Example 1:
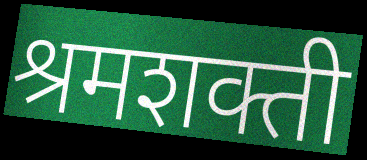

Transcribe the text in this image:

श्रमशक्ती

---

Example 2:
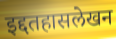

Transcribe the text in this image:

इद्दतहासलेखन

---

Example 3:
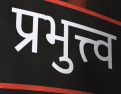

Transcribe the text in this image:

प्रभुत्त्व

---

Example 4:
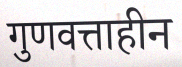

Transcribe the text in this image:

गुणवत्ताहीन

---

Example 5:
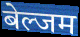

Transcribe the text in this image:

बेल्जम